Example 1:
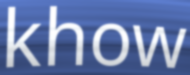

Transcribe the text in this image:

khow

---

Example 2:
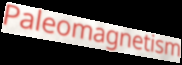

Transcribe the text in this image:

Paleomagnetism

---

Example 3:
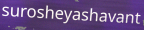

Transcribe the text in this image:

surosheyashavant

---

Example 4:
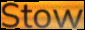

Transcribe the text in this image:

Stow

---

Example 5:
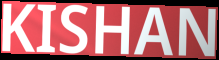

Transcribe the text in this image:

KISHAN